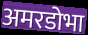
अमरडोभा